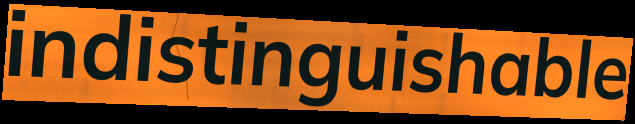
indistinguishable